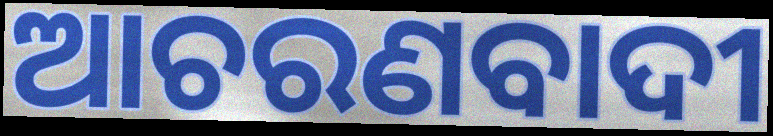
ଆଚରଣବାଦୀ